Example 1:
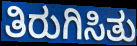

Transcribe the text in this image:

ತಿರುಗಿಸಿತು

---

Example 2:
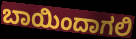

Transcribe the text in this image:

ಬಾಯಿಂದಾಗಲಿ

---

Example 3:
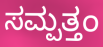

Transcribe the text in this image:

ಸಮ್ಪತ್ತಂ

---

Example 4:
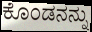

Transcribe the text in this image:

ಕೊಂಡನನ್ನು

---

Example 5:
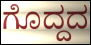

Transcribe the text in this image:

ಗೊದ್ದದ